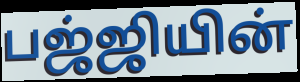
பஜ்ஜியின்